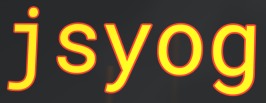
jsyog